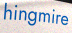
hingmire